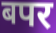
बपर